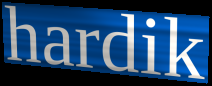
hardik